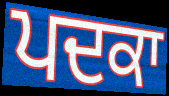
ਪਦਕਾ